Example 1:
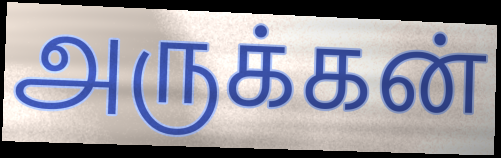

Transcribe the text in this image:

அருக்கன்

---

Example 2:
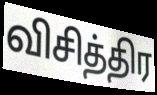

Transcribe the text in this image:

விசித்திர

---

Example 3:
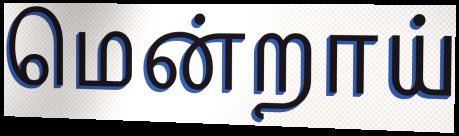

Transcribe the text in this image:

மென்றாய்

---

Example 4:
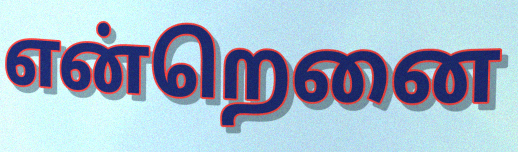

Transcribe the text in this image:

என்றெனை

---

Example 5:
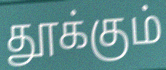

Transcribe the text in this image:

தூக்கும்